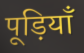
पूड़ियाँ